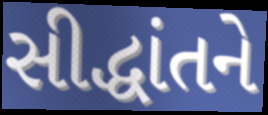
સીદ્ધાંતને